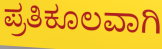
ಪ್ರತಿಕೂಲವಾಗಿ